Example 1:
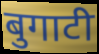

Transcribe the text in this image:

बुगाटी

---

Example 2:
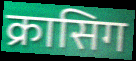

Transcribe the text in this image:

क्रासिग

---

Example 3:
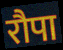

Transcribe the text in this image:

रौपा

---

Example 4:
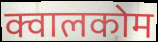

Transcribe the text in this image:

क्वालकोम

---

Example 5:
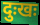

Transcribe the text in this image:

दुःखः